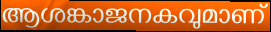
ആശങ്കാജനകവുമാണ്